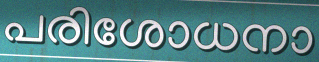
പരിശോധനാ